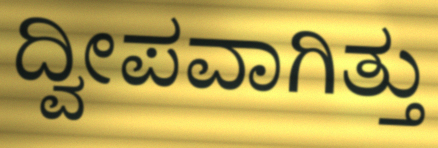
ದ್ವೀಪವಾಗಿತ್ತು